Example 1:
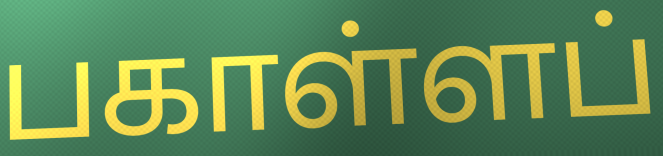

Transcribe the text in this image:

பகாள்ளப்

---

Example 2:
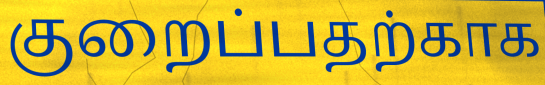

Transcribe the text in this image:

குறைப்பதற்காக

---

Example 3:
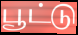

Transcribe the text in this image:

பூட்டு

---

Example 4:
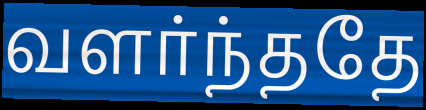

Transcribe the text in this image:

வளர்ந்ததே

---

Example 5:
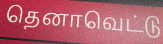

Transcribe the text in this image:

தெனாவெட்டு